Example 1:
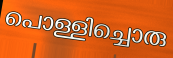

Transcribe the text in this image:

പൊള്ളിച്ചൊരു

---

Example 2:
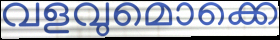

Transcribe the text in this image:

വളവുമൊക്കെ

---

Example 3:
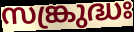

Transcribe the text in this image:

സങ്ക്രുദ്ധഃ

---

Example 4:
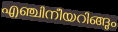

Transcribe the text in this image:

എഞ്ചിനീയറിങ്ങും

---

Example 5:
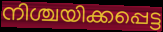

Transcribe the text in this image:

നിശ്ചയിക്കപ്പെട്ട